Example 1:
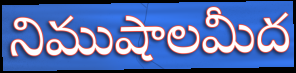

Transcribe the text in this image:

నిముషాలమీద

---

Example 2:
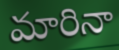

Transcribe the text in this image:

మారినా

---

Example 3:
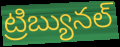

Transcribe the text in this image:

ట్రిబ్యునల్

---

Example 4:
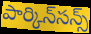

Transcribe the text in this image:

పార్కిన్‌సన్స్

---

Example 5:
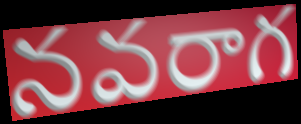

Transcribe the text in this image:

నవరాగ